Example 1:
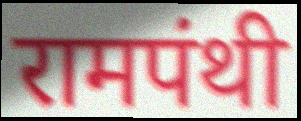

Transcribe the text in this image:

रामपंथी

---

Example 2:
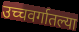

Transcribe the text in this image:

उच्चवर्गातल्या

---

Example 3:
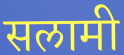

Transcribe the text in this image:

सलामी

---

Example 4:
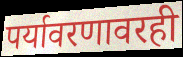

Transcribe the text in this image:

पर्यावरणावरही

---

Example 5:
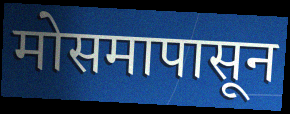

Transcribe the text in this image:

मोसमापासून